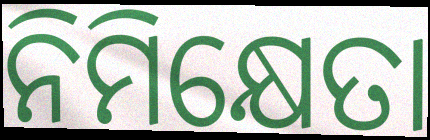
ନିମିକ୍ଷେତା